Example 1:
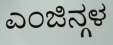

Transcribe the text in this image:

ಎಂಜಿನ್ಗಳ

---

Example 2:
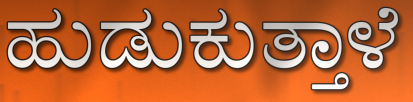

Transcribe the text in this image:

ಹುಡುಕುತ್ತಾಳೆ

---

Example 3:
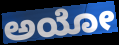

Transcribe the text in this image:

ಅಯೋ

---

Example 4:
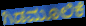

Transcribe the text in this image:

ಗಿಡಮೂಲಿಕೆ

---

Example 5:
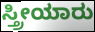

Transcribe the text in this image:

ಸ್ತ್ರೀಯಾರು